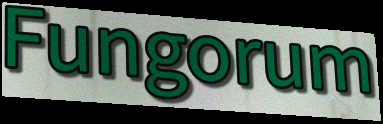
Fungorum